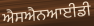
ਐਸਐਨਆਈਡੀ